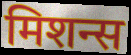
मिशन्स